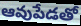
ఆవుపేడతో